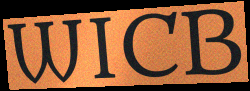
WICB